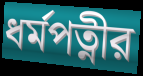
ধর্মপত্নীর